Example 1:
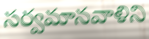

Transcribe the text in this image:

సర్వమానవాళిని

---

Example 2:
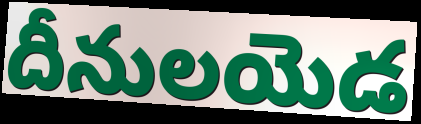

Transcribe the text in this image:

దీనులయెడ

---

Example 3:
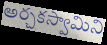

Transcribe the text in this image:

అర్చకస్వామిని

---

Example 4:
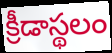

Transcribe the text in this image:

క్రీడాస్థలం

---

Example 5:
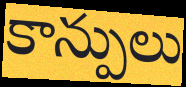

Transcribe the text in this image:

కాన్పులు